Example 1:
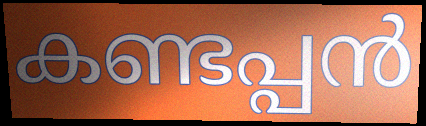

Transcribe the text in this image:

കണ്ടപ്പൻ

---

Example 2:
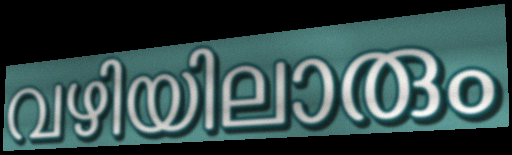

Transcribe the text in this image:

വഴിയിലാരും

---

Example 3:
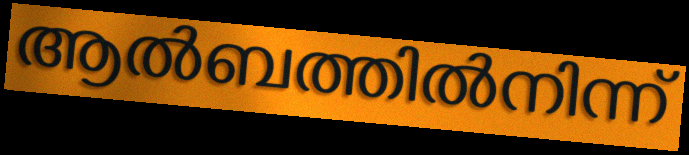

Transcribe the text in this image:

ആൽബത്തിൽനിന്ന്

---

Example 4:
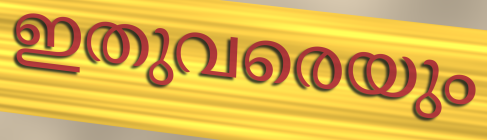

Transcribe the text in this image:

ഇതുവരെയും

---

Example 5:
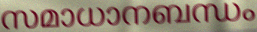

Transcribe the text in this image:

സമാധാനബന്ധം